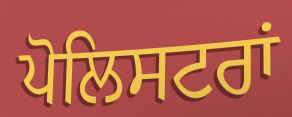
ਪੋਲਿਸਟਰਾਂ